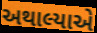
અથાલ્યાએ